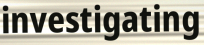
investigating